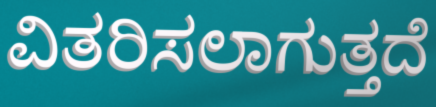
ವಿತರಿಸಲಾಗುತ್ತದೆ